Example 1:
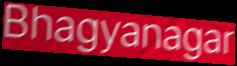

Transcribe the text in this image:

Bhagyanagar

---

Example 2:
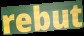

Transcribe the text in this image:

rebut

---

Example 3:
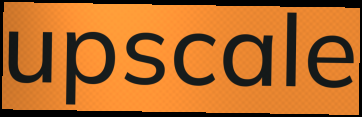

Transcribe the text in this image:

upscale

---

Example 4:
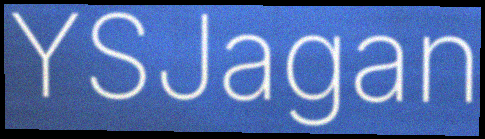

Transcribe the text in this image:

YSJagan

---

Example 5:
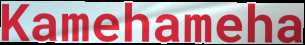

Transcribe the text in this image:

Kamehameha